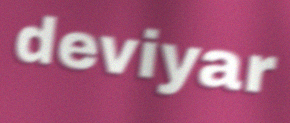
deviyar